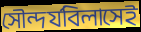
সৌন্দর্যবিলাসেই